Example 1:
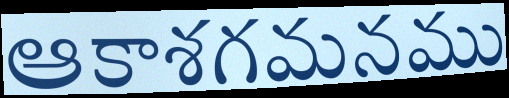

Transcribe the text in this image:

ఆకాశగమనము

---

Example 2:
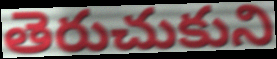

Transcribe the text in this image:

తెరుచుకుని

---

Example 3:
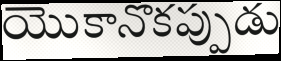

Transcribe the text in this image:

యొకానొకప్పుడు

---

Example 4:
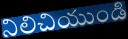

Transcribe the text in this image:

నిలిచియుండి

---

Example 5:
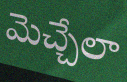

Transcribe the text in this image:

మెచ్చేలా